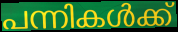
പന്നികൾക്ക്